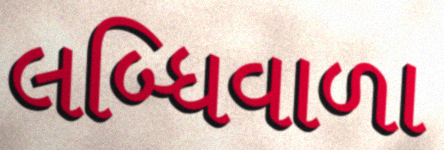
લબ્ધિવાળા